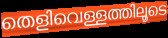
തെളിവെള്ളത്തിലൂടെ